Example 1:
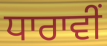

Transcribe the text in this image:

ਧਾਰਾਵੀਂ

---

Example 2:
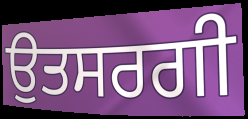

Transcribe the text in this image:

ਉਤਸਰਗੀ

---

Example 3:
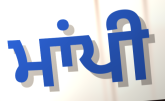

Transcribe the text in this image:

ਮਾਂਪੀ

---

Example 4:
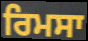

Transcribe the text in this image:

ਰਿਮਸਾ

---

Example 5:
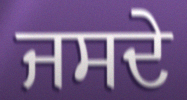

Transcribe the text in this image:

ਜਸਦੇ